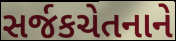
સર્જકચેતનાને